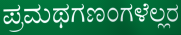
ಪ್ರಮಥಗಣಂಗಳೆಲ್ಲರ